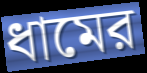
ধামের